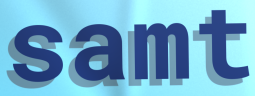
samt